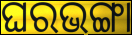
ଘରଭଙ୍ଗା